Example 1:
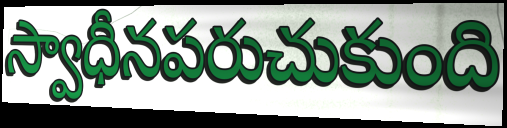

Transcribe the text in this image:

స్వాధీనపరుచుకుంది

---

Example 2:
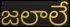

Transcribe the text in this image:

జలాలే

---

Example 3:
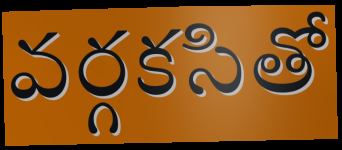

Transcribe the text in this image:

వర్గకసితో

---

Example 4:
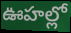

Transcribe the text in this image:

ఊహల్లో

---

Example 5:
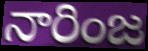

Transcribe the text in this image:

నారింజ